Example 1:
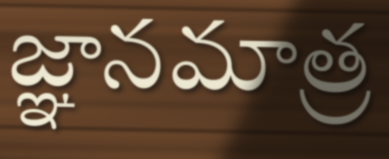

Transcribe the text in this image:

జ్ఞానమాత్ర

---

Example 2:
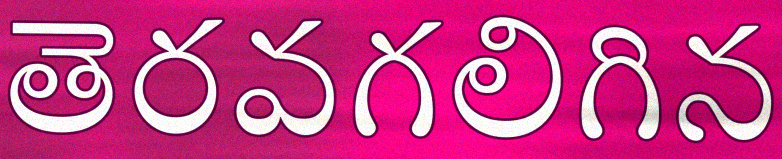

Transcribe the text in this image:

తెరవగలిగిన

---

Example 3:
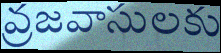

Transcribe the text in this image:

వ్రజవాసులకు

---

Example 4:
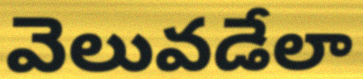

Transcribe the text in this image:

వెలువడేలా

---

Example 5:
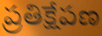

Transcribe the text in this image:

ప్రతిక్షేపణ